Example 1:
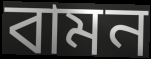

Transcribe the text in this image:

বামন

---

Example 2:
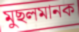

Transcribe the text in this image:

মুছলমানক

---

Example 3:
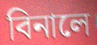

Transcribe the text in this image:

বিনালে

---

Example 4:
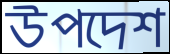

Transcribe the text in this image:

উপদেশ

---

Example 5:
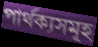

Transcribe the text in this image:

পাৰ্থক্যসমূহ